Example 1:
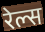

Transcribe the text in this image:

रेल्स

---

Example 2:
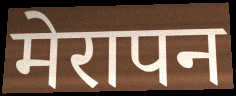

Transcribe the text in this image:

मेरापन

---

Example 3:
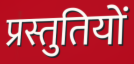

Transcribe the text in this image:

प्रस्तुतियों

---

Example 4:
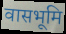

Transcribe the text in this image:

वासभूमि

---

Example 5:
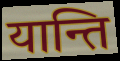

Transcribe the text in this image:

यान्ति